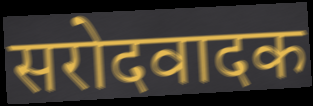
सरोदवादक